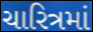
ચારિત્રમાં